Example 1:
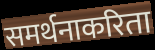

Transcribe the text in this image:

समर्थनाकरिता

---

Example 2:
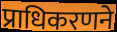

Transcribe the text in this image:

प्राधिकरणने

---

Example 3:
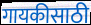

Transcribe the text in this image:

गायकीसाठी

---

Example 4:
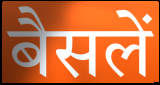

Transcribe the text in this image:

बैसलें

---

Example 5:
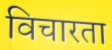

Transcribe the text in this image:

विचारता